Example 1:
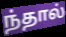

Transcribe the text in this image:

ந்தால்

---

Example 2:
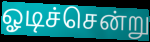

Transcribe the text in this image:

ஓடிச்சென்று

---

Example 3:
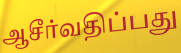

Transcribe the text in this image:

ஆசீர்வதிப்பது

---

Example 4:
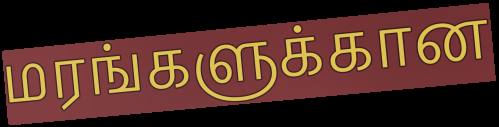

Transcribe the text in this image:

மரங்களுக்கான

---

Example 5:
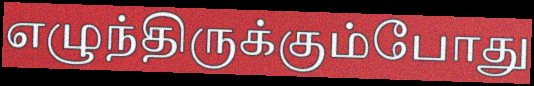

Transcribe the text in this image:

எழுந்திருக்கும்போது